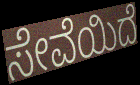
ಸೇವೆಯಿದೆ